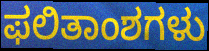
ಫಲಿತಾಂಶಗಳು